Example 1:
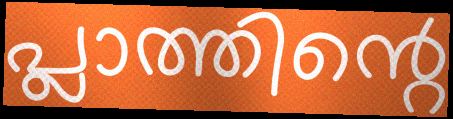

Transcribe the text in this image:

പ്ലാത്തിന്റെ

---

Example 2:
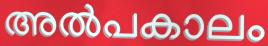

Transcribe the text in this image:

അൽപകാലം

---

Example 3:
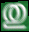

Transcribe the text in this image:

തു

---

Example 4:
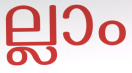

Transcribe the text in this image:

ല്ലാം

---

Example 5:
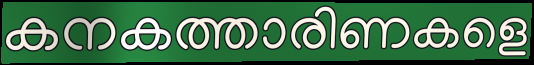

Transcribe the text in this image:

കനകത്താരിണകളെ